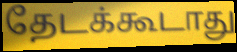
தேடக்கூடாது